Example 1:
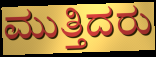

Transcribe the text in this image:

ಮುತ್ತಿದರು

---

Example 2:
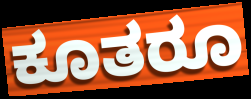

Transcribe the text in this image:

ಕೂತರೂ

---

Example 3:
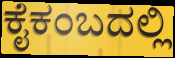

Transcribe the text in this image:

ಕೈಕಂಬದಲ್ಲಿ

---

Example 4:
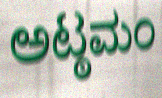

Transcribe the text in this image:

ಅಟ್ಠಮಂ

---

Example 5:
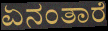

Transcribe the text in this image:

ಏನಂತಾರೆ